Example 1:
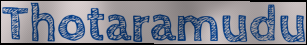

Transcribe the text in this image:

Thotaramudu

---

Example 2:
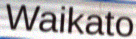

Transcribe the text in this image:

Waikato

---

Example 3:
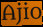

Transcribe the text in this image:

Ajio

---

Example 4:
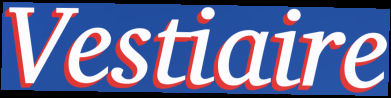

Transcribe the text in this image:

Vestiaire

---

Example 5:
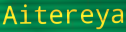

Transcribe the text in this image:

Aitereya